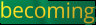
becoming